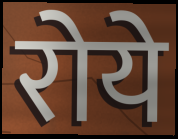
रोये